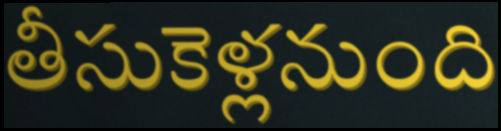
తీసుకెళ్లనుంది